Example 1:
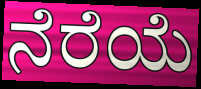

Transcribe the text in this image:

ನೆರೆಯೆ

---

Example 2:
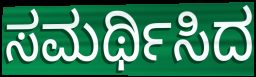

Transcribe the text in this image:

ಸಮರ್ಥಿಸಿದ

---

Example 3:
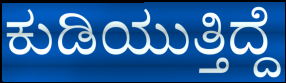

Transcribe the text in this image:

ಕುಡಿಯುತ್ತಿದ್ದೆ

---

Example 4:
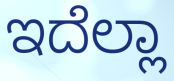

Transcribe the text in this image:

ಇದೆಲ್ಲಾ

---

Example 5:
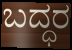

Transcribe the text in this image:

ಬದ್ಧರ